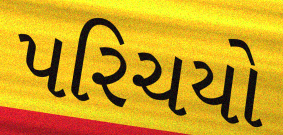
પરિચયો